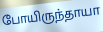
போயிருந்தாயா